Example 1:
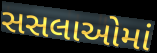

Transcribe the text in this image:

સસલાઓમાં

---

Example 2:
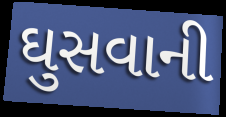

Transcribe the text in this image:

ઘુસવાની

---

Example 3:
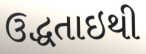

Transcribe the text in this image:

ઉદ્ધતાઇથી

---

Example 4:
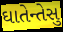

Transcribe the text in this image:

ઘાતેન્તેસુ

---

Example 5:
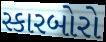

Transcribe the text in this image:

સ્કારબોરો